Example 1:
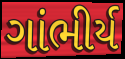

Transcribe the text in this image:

ગાંભીર્ય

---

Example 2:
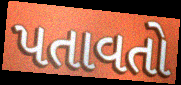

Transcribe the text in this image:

પતાવતો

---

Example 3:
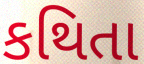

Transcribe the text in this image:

કથિતા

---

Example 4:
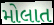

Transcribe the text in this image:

મોલાત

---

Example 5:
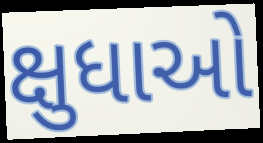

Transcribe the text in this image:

ક્ષુધાઓ